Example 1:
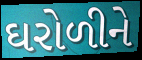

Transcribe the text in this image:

ઘરોળીને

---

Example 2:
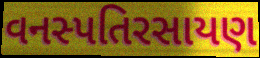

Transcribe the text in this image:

વનસ્પતિરસાયણ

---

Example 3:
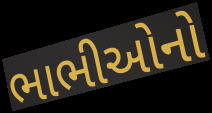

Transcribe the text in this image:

ભાભીઓનો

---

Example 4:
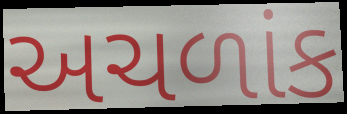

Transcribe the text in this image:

અચળાંક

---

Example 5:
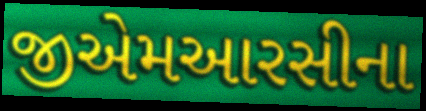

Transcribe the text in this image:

જીએમઆરસીના